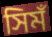
সিমঁ